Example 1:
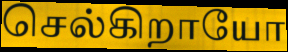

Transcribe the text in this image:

செல்கிறாயோ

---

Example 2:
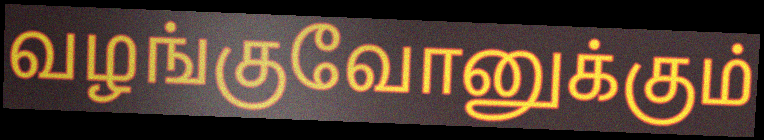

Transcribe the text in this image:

வழங்குவோனுக்கும்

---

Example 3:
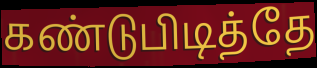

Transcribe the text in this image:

கண்டுபிடித்தே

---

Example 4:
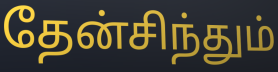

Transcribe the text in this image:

தேன்சிந்தும்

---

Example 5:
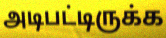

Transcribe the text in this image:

அடிபட்டிருக்க